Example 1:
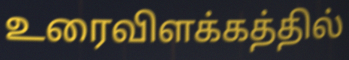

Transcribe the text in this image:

உரைவிளக்கத்தில்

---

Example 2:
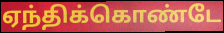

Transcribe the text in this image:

ஏந்திக்கொண்டே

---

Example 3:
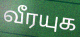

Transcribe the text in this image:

வீரயுக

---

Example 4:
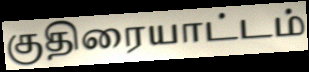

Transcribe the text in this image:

குதிரையாட்டம்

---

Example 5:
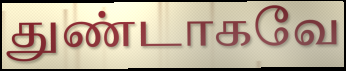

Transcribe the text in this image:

துண்டாகவே